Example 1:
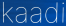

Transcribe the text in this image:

kaadi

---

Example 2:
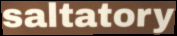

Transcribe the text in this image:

saltatory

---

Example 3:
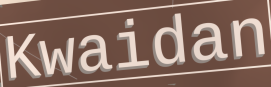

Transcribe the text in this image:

Kwaidan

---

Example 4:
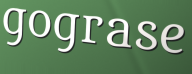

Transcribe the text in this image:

gograse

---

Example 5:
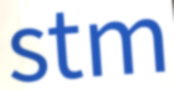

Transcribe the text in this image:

stm